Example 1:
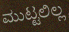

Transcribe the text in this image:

ಮುಟ್ಟಲಿಲ್ಲ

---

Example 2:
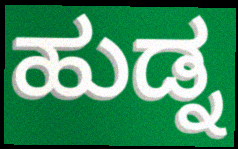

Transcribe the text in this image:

ಹುಡ್ನ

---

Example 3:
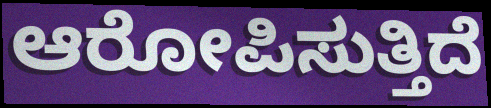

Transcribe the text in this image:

ಆರೋಪಿಸುತ್ತಿದೆ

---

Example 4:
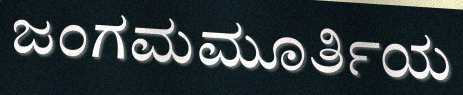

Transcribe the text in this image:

ಜಂಗಮಮೂರ್ತಿಯ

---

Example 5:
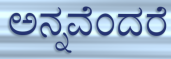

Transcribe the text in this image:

ಅನ್ನವೆಂದರೆ